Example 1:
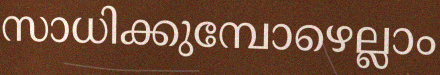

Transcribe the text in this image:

സാധിക്കുമ്പോഴെല്ലാം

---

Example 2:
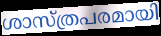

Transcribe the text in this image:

ശാസ്ത്രപരമായി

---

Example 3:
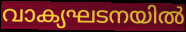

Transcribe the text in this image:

വാക്യഘടനയിൽ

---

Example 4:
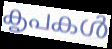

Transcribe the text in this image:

കൃപകൾ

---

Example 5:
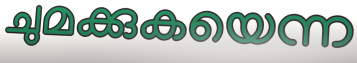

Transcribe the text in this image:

ചുമക്കുകയെന്ന